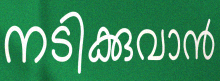
നടിക്കുവാൻ